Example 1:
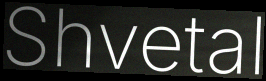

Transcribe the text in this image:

Shvetal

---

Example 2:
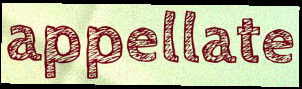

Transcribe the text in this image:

appellate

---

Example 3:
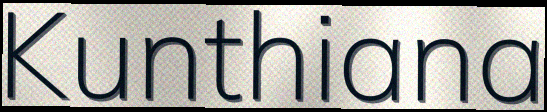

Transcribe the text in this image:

Kunthiana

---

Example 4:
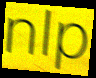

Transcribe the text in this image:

nlp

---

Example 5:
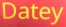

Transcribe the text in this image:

Datey